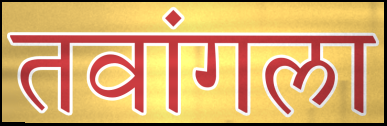
तवांगला